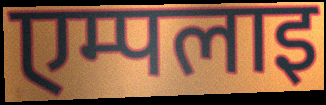
एम्पलाइ